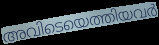
അവിടെയെത്തിയവർ